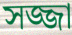
সজ্জা